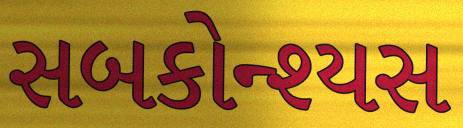
સબકોન્શ્યસ